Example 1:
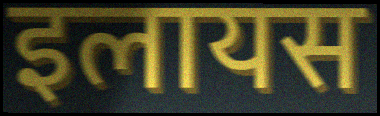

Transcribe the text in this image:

इलायस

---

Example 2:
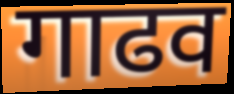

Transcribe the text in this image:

गाढव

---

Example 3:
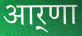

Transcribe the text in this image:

आर्णा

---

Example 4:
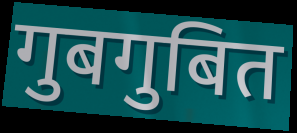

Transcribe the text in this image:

गुबगुबित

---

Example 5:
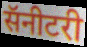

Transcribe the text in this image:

सॅनीटरी